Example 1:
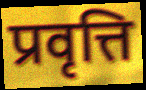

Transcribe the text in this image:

प्रवृत्ति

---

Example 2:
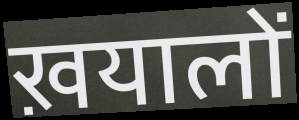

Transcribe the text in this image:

ख़यालों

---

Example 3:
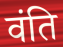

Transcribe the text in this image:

वंति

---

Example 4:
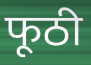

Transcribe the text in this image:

फूठी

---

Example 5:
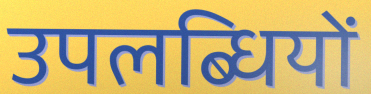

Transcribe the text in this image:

उपलब्धियों